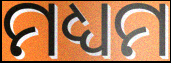
ମଧ୍ୟମ